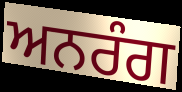
ਅਨਰੰਗ